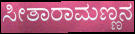
ಸೀತಾರಾಮಣ್ಣನ